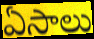
ఏసాలు